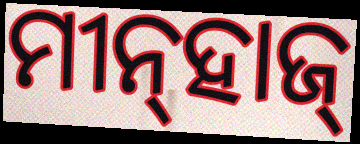
ମୀନ୍‌ହାଜ୍